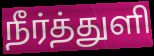
நீர்த்துளி